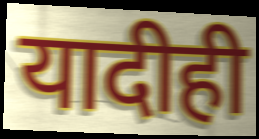
यादीही